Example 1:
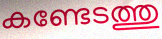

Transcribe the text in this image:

കണ്ടേടത്തു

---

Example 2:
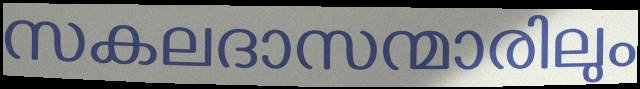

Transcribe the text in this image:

സകലദാസന്മാരിലും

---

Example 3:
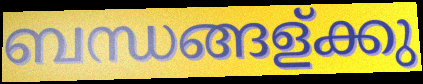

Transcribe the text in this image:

ബന്ധങ്ങള്ക്കു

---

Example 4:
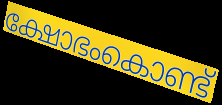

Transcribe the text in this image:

ക്ഷോഭംകൊണ്ട്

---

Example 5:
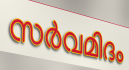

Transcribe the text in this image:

സർവമിദം